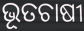
ଭୂତଚାଷୀ